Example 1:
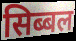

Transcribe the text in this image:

सिब्बल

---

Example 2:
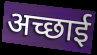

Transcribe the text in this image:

अच्छाई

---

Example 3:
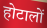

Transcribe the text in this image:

होटालों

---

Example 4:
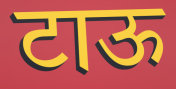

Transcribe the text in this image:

टाऊ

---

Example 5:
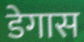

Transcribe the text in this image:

डेगास